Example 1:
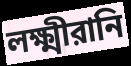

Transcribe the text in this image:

লক্ষ্মীরানি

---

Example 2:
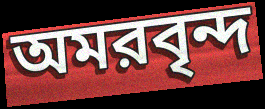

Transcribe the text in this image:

অমরবৃন্দ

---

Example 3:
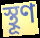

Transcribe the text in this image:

স্থূণ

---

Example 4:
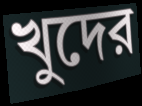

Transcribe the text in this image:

খুদের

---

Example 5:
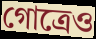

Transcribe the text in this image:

গোত্রেও